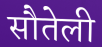
सौतेली